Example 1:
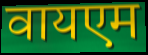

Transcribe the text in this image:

वायएम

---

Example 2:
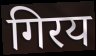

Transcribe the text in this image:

गिरय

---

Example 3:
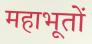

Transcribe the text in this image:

महाभूतों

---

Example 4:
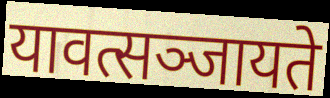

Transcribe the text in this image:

यावत्सञ्जायते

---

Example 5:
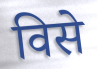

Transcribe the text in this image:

विसे